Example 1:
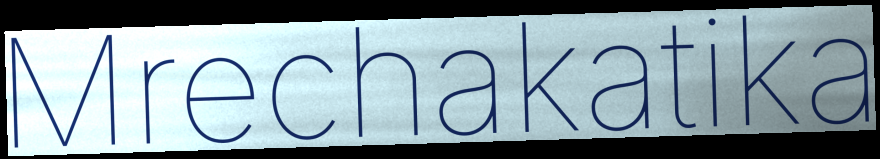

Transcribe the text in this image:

Mrechakatika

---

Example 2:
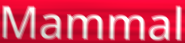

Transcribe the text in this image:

Mammal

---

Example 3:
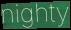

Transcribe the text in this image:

nighty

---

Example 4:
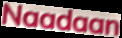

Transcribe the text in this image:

Naadaan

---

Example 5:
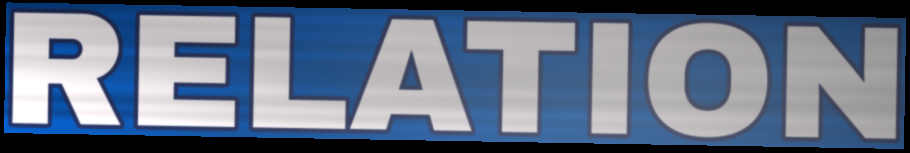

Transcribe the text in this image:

RELATION